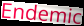
Endemic